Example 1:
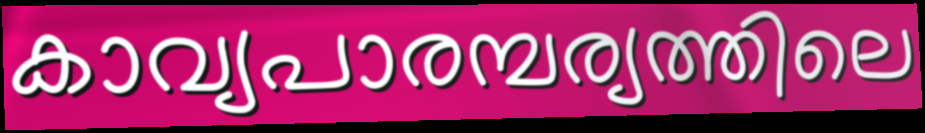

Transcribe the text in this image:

കാവ്യപാരമ്പര്യത്തിലെ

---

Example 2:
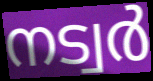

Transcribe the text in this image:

നട്വർ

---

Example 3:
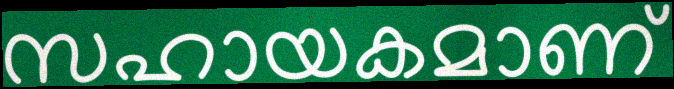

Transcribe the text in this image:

സഹായകമാണ്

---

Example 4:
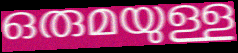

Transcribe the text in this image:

ഒരുമയുള്ള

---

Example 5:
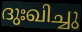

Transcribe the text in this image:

ദുഃഖിച്ചു